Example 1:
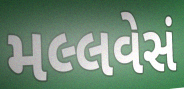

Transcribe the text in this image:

મલ્લવેસં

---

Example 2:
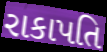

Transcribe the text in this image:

રાકાપતિ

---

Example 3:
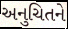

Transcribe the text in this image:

અનુચિતને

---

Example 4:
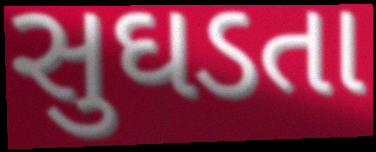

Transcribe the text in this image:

સુઘડતા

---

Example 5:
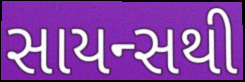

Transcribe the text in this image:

સાયન્સથી